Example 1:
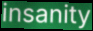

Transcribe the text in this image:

insanity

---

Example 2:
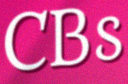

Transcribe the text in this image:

CBs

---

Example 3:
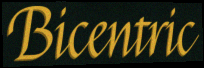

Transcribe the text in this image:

Bicentric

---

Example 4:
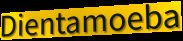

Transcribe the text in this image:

Dientamoeba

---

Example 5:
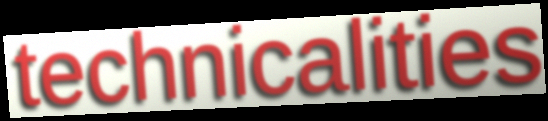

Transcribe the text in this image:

technicalities